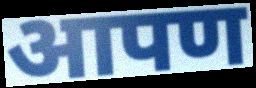
आपण